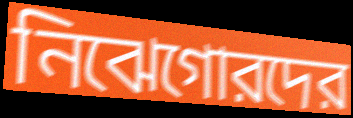
নিঝেগোরদের